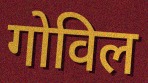
गोविल